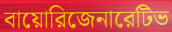
বায়োরিজেনারেটিভ